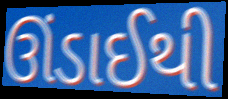
ઊંડાઈથી